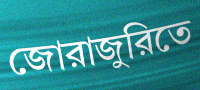
জোরাজুরিতে